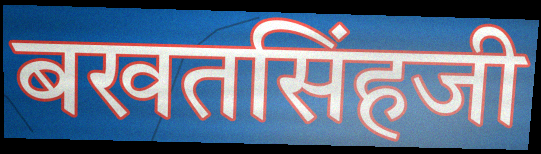
बखतसिंहजी